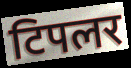
टिपलर